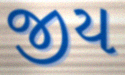
જીય